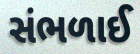
સંભળાઈ